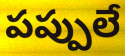
పప్పులే